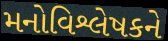
મનોવિશ્લેષકને